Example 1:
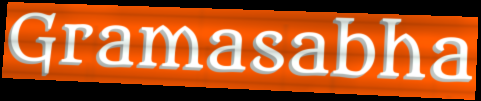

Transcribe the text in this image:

Gramasabha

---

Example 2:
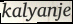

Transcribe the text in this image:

kalyanje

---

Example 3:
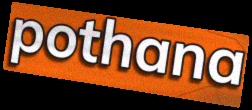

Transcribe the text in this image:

pothana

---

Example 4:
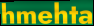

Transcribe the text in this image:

hmehta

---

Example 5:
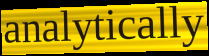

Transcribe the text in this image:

analytically